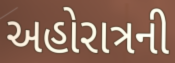
અહોરાત્રની